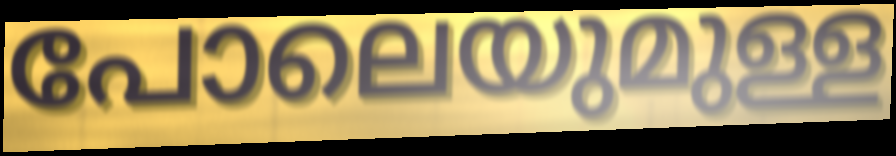
പോലെയുമുള്ള